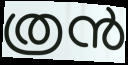
ത്രൻ